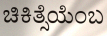
ಚಿಕಿತ್ಸೆಯೆಂಬ